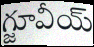
గ్జూవీయ్